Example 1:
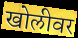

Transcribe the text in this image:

खोलीवर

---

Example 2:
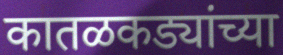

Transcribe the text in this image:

कातळकड्यांच्या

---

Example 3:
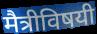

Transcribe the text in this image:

मैत्रीविषयी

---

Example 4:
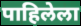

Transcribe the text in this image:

पाहिलेला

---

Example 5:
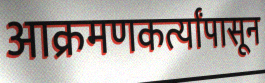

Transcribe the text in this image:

आक्रमणकर्त्यांपासून